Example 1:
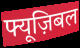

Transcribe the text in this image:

फ्यूज़िबल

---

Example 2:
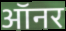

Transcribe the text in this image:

ऑनर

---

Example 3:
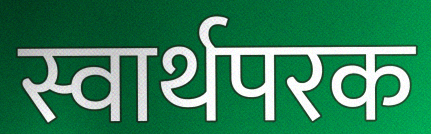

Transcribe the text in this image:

स्वार्थपरक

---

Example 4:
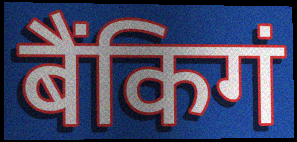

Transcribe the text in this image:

बैंकिगं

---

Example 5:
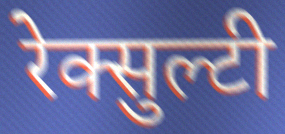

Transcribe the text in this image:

रेक्सुल्टी